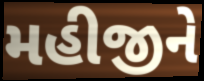
મહીજીને